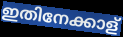
ഇതിനേക്കാള്